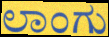
ಲಾಂಗು